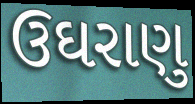
ઉઘરાણુ